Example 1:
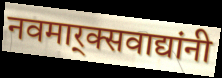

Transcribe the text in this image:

नवमार्क्सवाद्यांनी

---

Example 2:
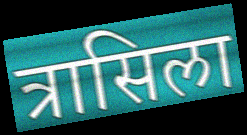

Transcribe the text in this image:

त्रासिला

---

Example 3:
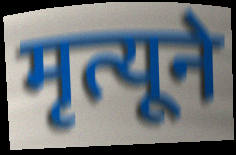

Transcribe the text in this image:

मृत्यूने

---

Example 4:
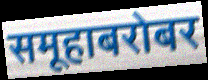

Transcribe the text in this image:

समूहाबरोबर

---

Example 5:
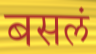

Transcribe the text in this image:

बसलं